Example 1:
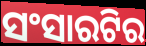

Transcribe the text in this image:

ସଂସାରଟିର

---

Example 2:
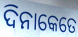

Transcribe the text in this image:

ଦିନାକେତେ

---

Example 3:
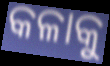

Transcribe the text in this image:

କଳାକୁ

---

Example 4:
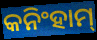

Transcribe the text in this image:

କନିଂହାମ୍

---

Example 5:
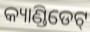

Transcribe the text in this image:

କ୍ୟାଣ୍ଡିଡେଟ୍